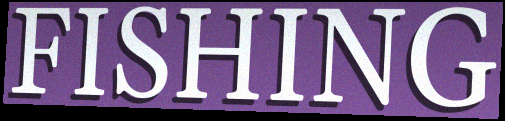
FISHING